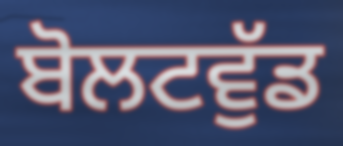
ਬੋਲਟਵੁੱਡ